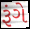
રૂંગે